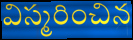
విస్మరించిన